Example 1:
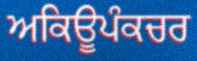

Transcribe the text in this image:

ਅਕਿਊਪੰਕਚਰ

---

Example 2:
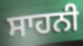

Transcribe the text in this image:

ਸਾਹਨੀ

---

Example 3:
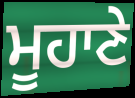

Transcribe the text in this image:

ਮੂਹਾਣੇ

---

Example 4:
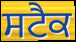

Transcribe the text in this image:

ਸਟੈਕ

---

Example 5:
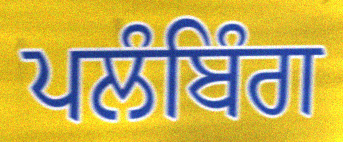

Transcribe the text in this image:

ਪਲੰਬਿੰਗ